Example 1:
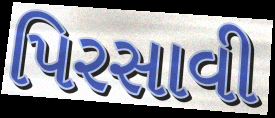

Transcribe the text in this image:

પિરસાવી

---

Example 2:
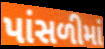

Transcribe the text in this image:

પાંસળીમાં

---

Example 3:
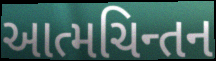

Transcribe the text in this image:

આત્મચિન્તન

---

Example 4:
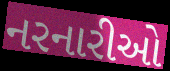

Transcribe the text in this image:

નરનારીઓ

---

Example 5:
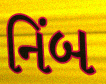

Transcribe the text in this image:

નિંબ